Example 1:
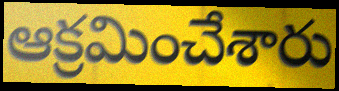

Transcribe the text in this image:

ఆక్రమించేశారు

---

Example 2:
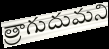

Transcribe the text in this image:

త్రాగుదుమని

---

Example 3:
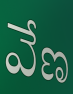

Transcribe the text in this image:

వేణ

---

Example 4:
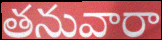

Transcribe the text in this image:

తనువారా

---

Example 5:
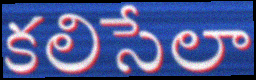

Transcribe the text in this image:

కలిసేలా